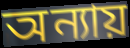
অন্যায়